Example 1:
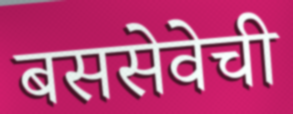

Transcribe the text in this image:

बससेवेची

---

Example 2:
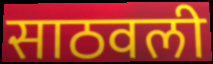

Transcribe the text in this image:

साठवली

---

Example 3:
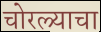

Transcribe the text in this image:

चोरल्याचा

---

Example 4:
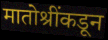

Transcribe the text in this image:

मातोश्रींकडून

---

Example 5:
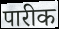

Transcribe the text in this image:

पारीक